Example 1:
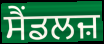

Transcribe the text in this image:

ਸੈਂਡਲਜ਼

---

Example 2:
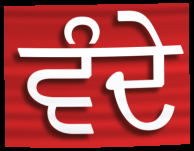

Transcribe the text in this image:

ਵੰਦੇ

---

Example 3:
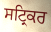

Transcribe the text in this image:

ਸਟ੍ਰਿਕਰ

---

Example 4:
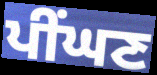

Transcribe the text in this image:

ਪੀਂਘਣ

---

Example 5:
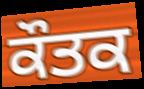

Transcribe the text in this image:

ਕੌਤਕ